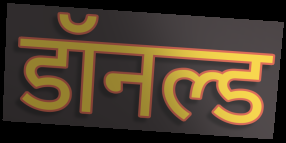
डॉनल्ड